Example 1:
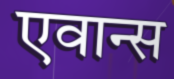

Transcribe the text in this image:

एवान्स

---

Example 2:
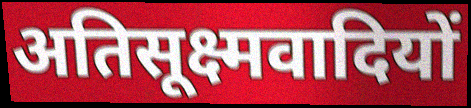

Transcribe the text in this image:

अतिसूक्ष्मवादियों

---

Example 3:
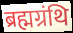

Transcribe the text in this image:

ब्रह्मग्रंथि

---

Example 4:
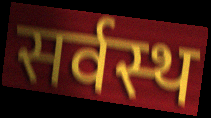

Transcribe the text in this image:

सर्वस्थ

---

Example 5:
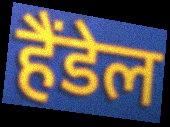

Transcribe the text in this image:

हैंडेल